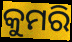
କୁମରି